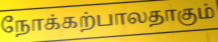
நோக்கற்பாலதாகும்